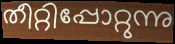
തീറ്റിപ്പോറ്റുന്നു